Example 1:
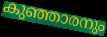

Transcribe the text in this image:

കുഞ്ഞാരനും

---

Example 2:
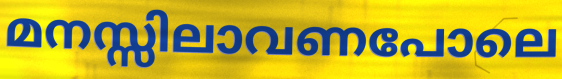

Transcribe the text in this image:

മനസ്സിലാവണപോലെ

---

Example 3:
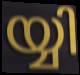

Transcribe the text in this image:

യ്യി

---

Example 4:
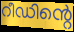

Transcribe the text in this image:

റീഡിന്റെ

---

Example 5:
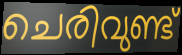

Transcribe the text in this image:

ചെരിവുണ്ട്